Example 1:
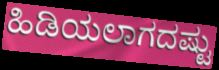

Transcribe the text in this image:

ಹಿಡಿಯಲಾಗದಷ್ಟು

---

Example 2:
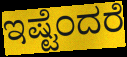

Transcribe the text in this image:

ಇಷ್ಟೆಂದರೆ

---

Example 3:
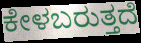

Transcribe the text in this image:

ಕೇಳಬರುತ್ತದೆ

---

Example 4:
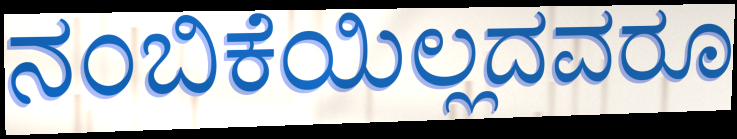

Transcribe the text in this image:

ನಂಬಿಕೆಯಿಲ್ಲದವರೂ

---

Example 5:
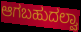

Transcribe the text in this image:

ಆಗಬಹುದಲ್ವಾ